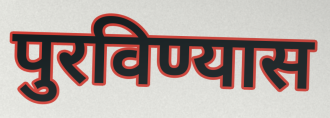
पुरविण्यास